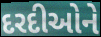
દરદીઓને